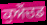
ਕੁਐਂਚਡ